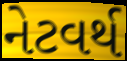
નેટવર્થ